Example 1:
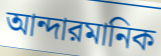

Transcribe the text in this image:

আন্দারমানিক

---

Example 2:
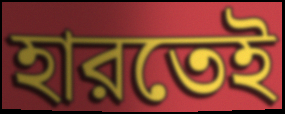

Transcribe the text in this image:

হারতেই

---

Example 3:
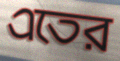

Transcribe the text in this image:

এতের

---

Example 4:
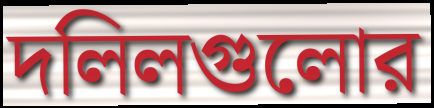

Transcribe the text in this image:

দলিলগুলোর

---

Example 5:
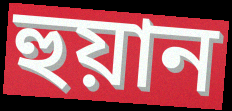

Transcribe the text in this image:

হুয়ান